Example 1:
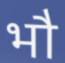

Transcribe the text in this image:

भौ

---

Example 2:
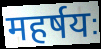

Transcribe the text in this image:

महर्षयः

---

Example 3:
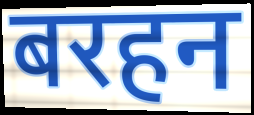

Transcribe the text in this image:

बरहन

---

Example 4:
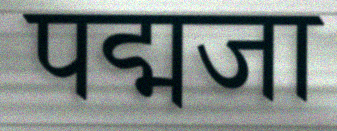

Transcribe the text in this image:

पद्मजा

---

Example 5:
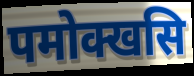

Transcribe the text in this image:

पमोक्खसि